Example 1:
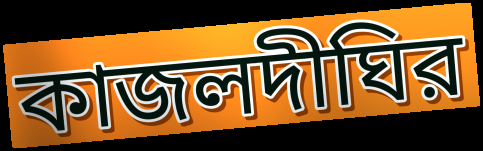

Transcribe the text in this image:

কাজলদীঘির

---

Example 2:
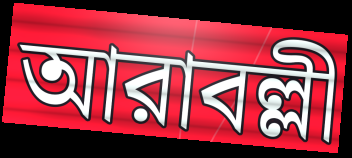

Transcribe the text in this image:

আরাবল্লী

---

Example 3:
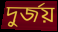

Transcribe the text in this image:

দুর্জয়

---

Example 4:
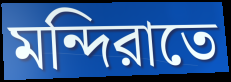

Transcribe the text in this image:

মন্দিরাতে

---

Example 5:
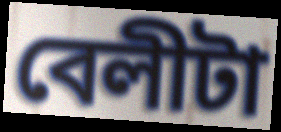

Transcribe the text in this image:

বেলীটা